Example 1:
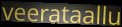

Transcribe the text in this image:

veerataallu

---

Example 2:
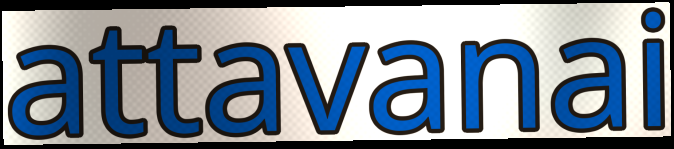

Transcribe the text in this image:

attavanai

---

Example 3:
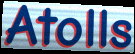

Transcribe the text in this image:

Atolls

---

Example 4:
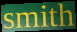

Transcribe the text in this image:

smith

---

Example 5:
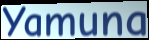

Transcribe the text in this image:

Yamuna